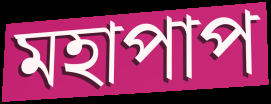
মহাপাপ